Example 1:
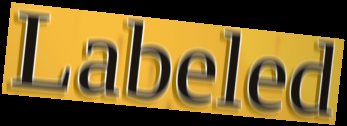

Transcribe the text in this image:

Labeled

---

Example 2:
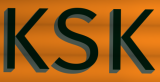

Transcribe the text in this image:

KSK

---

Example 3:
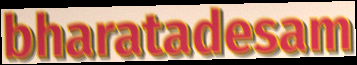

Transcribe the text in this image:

bharatadesam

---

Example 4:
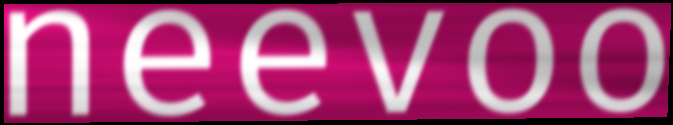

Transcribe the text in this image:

neevoo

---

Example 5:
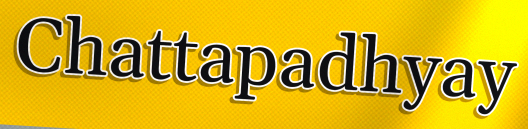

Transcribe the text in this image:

Chattapadhyay